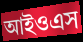
আইওএস